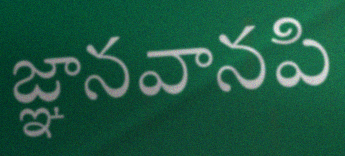
జ్ఞానవానపి